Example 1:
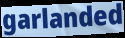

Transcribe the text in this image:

garlanded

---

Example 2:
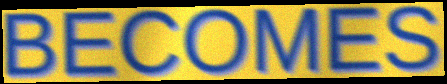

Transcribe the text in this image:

BECOMES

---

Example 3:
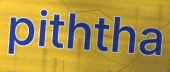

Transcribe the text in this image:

piththa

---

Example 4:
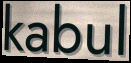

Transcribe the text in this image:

kabul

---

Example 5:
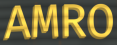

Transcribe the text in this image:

AMRO